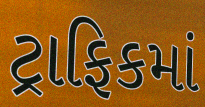
ટ્રાફિકમાં